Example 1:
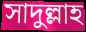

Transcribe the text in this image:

সাদুল্লাহ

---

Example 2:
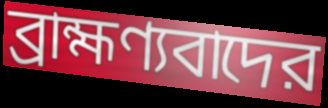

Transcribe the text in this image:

ব্রাহ্মণ্যবাদের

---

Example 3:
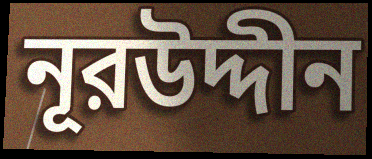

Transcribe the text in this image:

নূরউদ্দীন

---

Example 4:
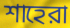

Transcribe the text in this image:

শাহেরা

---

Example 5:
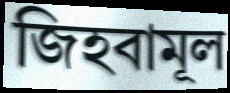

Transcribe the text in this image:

জিহবামূল